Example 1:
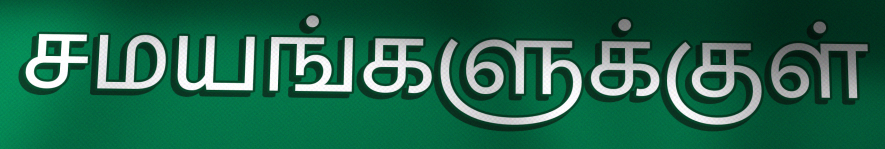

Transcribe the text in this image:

சமயங்களுக்குள்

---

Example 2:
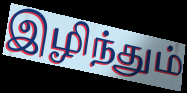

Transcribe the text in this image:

இழிந்தும்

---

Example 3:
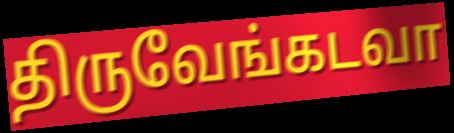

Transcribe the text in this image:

திருவேங்கடவா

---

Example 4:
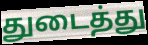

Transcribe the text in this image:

துடைத்து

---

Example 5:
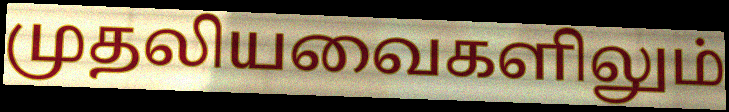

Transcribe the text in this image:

முதலியவைகளிலும்